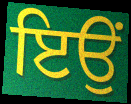
ਇਉਂ